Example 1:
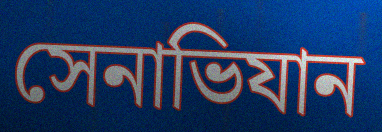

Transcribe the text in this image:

সেনাভিযান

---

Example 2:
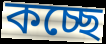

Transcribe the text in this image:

কচ্ছে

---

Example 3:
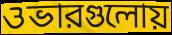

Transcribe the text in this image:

ওভারগুলোয়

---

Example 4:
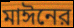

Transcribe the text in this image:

মাঈনের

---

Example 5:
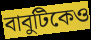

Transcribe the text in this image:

বাবুটিকেও